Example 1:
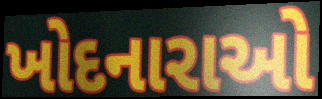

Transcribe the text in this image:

ખોદનારાઓ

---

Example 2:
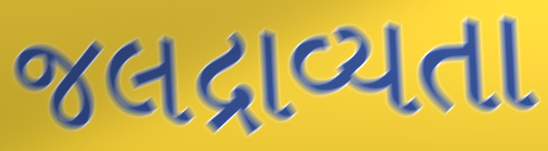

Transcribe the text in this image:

જલદ્રાવ્યતા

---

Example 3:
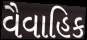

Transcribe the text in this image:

વૈવાહિક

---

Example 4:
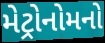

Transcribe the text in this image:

મેટ્રોનોમનો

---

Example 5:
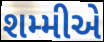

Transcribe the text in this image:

શમ્મીએ